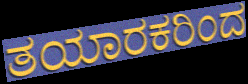
ತಯಾರಕರಿಂದ